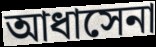
আধাসেনা